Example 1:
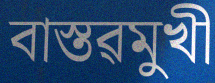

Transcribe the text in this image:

বাস্তৱমুখী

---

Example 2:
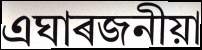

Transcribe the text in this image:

এঘাৰজনীয়া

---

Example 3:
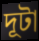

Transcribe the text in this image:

দূটা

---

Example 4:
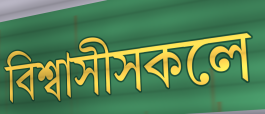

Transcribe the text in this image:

বিশ্বাসীসকলে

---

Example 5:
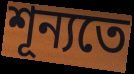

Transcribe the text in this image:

শূন্যতে